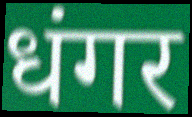
धंगर